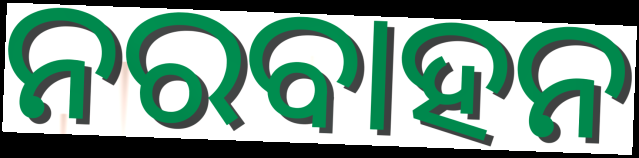
ନରବାହନ